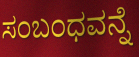
ಸಂಬಂಧವನ್ನೆ